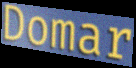
Domar